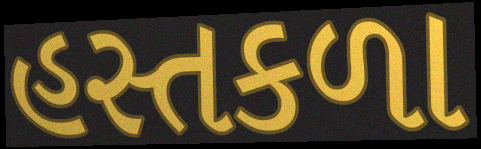
હસ્તકળા